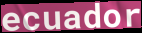
ecuador